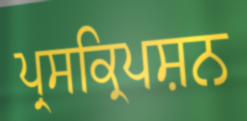
ਪ੍ਰਸਕ੍ਰਿਪਸ਼ਨ